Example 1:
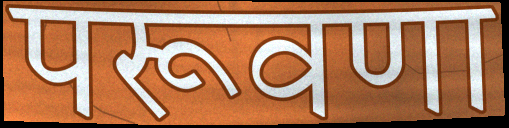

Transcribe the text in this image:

परूवणा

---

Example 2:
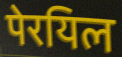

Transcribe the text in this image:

पेरयिल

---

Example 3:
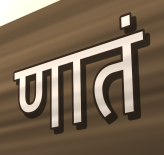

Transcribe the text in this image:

णातं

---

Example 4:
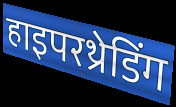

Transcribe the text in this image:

हाइपरथ्रेडिंग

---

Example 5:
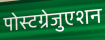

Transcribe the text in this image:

पोस्टग्रेजुएशन